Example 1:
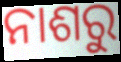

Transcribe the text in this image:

ନାଶରୁ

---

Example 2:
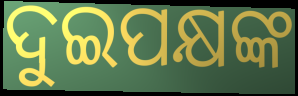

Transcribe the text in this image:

ଦୁଇପକ୍ଷଙ୍କ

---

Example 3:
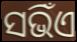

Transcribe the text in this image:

ସଭିଁଏ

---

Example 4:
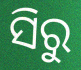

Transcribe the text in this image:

ସିରୁ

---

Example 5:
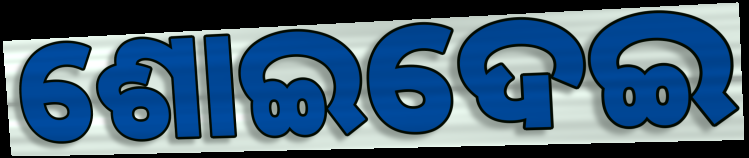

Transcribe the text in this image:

ଶୋଇଦେଇ